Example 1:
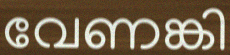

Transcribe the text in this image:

വേണങ്കി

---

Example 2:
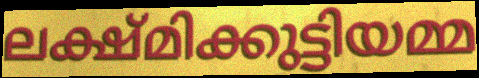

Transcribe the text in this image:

ലക്ഷ്മിക്കുട്ടിയമ്മ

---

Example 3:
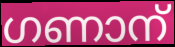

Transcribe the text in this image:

ഗണാന്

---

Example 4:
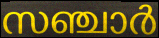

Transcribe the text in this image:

സഞ്ചാർ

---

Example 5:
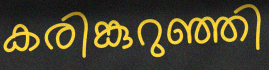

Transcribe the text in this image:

കരിങ്കുറുഞ്ഞി